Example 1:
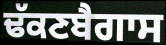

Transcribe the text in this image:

ਢੱਕਣਬੈਗਾਸ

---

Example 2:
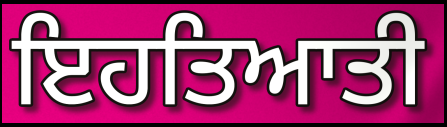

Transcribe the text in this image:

ਇਹਤਿਆਤੀ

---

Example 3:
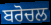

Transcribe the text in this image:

ਬਰੋਚਲ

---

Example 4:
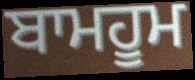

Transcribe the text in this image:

ਬਾਮਹੂਮ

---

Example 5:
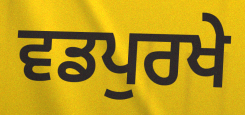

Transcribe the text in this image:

ਵਡਪੁਰਖੇ